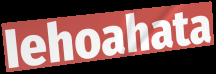
Iehoahata